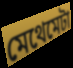
মেথেমেটা